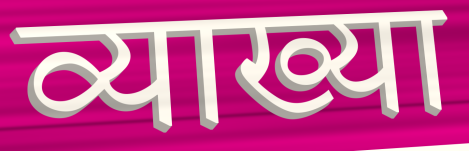
व्याख्या